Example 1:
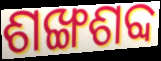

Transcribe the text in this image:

ଶଙ୍ଖଶବ୍ଦ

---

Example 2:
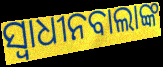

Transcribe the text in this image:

ସ୍ୱାଧୀନବାଲାଙ୍କ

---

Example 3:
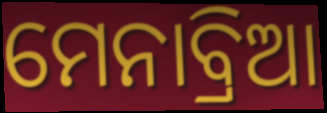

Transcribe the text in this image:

ମେନାବ୍ରିଆ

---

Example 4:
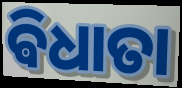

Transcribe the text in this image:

ଵିଧାତା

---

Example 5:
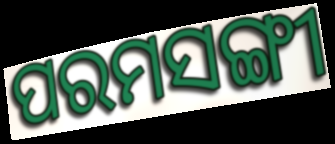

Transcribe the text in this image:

ପରମସଙ୍ଗୀ